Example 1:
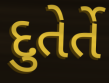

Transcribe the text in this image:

દુતેર્તે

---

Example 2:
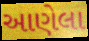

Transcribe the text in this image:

આણેલા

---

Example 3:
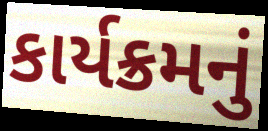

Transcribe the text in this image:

કાર્યક્રમનું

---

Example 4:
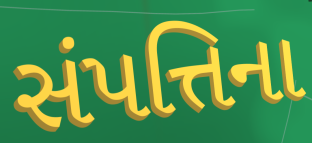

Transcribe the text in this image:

સંપત્તિના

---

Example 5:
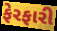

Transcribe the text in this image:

ફેરફારી